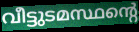
വീട്ടുടമസ്ഥന്റെ